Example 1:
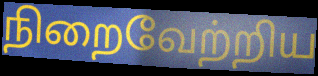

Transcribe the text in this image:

நிறைவேற்றிய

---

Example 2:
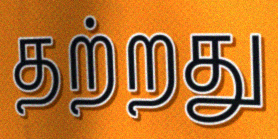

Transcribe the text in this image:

தற்றது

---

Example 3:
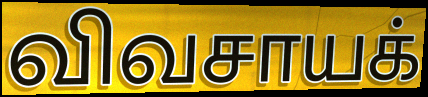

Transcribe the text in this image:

விவசாயக்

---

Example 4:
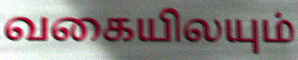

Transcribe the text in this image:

வகையிலயும்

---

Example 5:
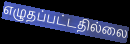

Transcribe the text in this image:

எழுதப்பட்டதில்லை